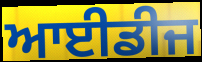
ਆਈਡੀਜ